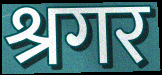
श्रगर